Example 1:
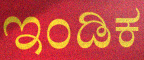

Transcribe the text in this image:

ಇಂಡಿಕ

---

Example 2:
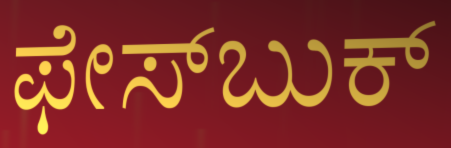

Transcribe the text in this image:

ಫೇಸ್‌ಬುಕ್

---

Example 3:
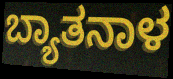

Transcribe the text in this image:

ಬ್ಯಾತನಾಳ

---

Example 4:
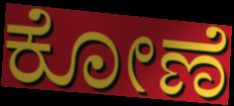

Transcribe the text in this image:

ಕೋಣೆ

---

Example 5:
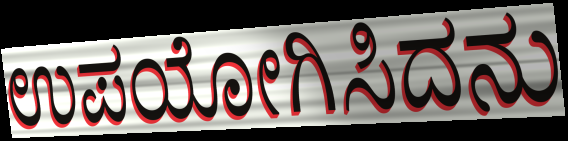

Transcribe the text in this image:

ಉಪಯೋಗಿಸಿದನು